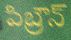
పిబ్రౌన్